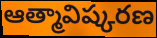
ఆత్మావిష్కరణ